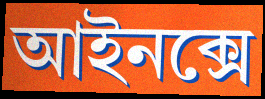
আইনক্সে